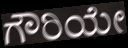
ಗೌರಿಯೇ